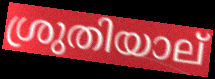
ശ്രുതിയാല്